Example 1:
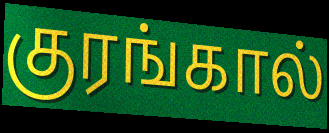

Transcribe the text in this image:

குரங்கால்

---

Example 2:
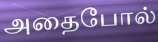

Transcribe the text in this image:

அதைபோல்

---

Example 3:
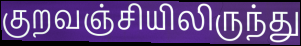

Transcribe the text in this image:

குறவஞ்சியிலிருந்து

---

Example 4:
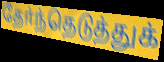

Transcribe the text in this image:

தேர்ந்தெடுத்துக்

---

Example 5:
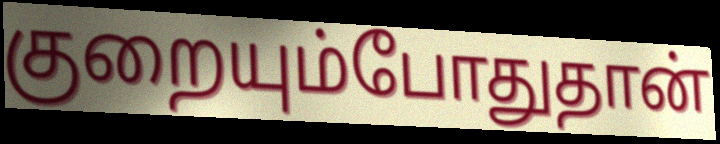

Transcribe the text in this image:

குறையும்போதுதான்